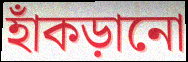
হাঁকড়ানো